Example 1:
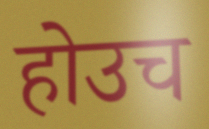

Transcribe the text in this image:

होउच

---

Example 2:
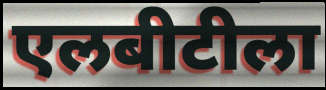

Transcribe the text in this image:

एलबीटीला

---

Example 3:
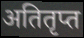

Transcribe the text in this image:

अतितृप्त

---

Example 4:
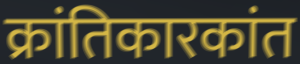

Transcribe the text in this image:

क्रांतिकारकांत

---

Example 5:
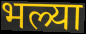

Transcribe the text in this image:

भल्या